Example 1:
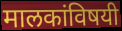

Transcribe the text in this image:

मालकांविषयी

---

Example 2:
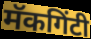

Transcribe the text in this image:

मॅकगिंटी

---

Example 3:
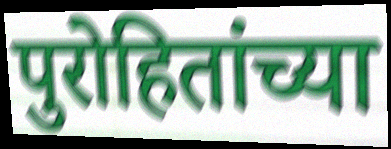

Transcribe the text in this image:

पुरोहितांच्या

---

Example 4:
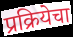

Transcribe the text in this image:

प्रक्रियेचा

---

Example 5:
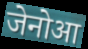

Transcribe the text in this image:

जेनोआ